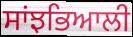
ਸਾਂਝਭਿਆਲੀ